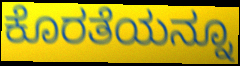
ಕೊರತೆಯನ್ನೂ